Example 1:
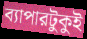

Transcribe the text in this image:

ব্যাপারটুকুই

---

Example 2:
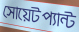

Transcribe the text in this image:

সোয়েটপ্যান্ট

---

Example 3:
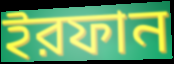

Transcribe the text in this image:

ইরফান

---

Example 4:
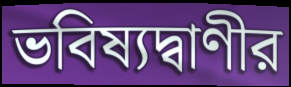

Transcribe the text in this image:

ভবিষ্যদ্বাণীর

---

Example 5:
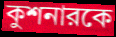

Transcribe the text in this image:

কুশনারকে